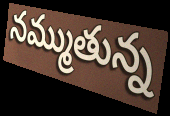
నమ్ముతున్న